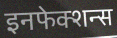
इनफेक्शन्स